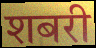
शबरी